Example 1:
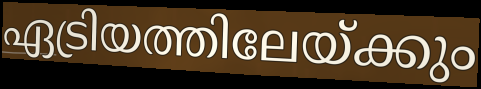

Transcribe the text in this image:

ഏട്രിയത്തിലേയ്ക്കും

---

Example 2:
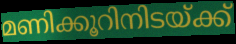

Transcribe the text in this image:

മണിക്കൂറിനിടയ്ക്ക്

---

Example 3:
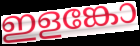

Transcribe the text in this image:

ഇളങ്കോ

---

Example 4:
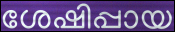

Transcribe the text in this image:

ശേഷിപ്പായ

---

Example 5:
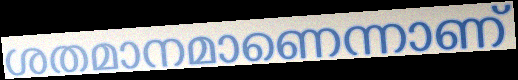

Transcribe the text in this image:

ശതമാനമാണെന്നാണ്